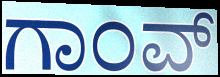
ಗಾಂವ್